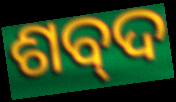
ଶବ୍‍ଦ